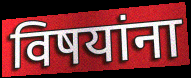
विषयांना